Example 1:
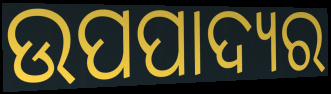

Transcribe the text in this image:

ଉପପାଦ୍ୟର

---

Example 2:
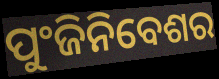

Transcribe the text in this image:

ପୁଂଜିନିବେଶର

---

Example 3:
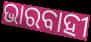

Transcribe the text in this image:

ଭାରବାହୀ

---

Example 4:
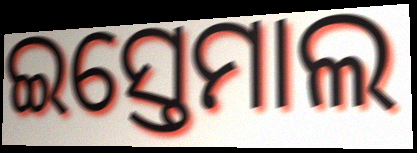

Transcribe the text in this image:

ଇସ୍ତେମାଲ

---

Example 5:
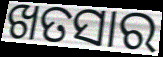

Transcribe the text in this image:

ଖତସାର